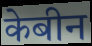
केबीन